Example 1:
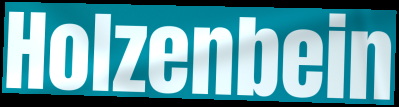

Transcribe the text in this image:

Holzenbein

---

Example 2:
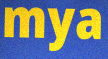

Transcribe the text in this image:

mya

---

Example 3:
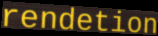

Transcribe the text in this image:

rendetion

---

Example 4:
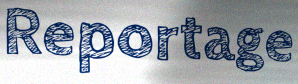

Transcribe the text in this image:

Reportage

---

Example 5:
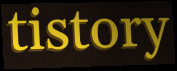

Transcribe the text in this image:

tistory